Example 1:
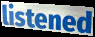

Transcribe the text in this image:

listened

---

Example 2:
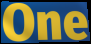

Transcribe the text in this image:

One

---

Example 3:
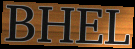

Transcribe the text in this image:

BHEL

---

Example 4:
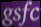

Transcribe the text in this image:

gsfc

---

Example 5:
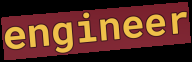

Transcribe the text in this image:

engineer